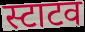
स्टाटव